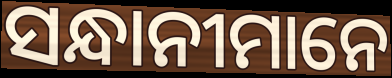
ସନ୍ଧାନୀମାନେ